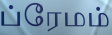
ப்ரேமம்